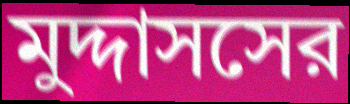
মুদ্দাসসের